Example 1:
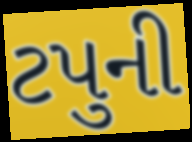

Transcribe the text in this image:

ટપુની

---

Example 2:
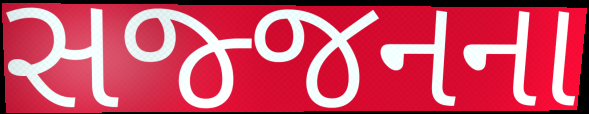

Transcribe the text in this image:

સજ્જનના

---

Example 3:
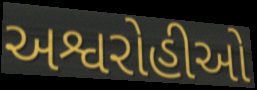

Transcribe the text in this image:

અશ્વરોહીઓ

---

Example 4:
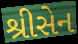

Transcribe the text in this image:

શ્રીસેન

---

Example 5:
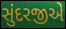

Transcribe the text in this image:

સુંદરજીએ